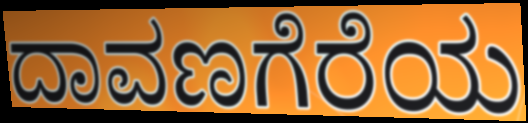
ದಾವಣಗೆರೆಯ